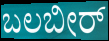
ಬಲಬೀರ್